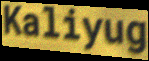
Kaliyug